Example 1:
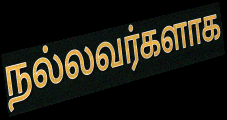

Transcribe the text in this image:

நல்லவர்களாக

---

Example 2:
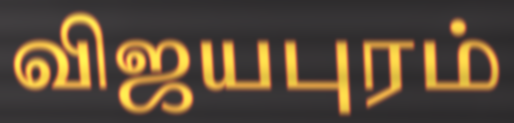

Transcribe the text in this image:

விஜயபுரம்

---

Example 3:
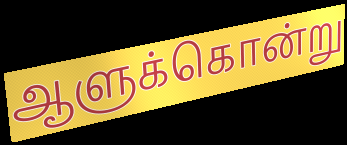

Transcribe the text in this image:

ஆளுக்கொன்று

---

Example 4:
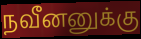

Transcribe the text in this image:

நவீனனுக்கு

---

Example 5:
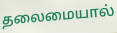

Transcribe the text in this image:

தலைமையால்